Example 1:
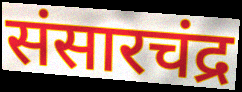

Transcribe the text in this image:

संसारचंद्र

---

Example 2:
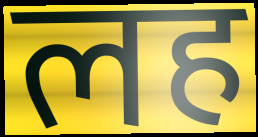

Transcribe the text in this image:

लह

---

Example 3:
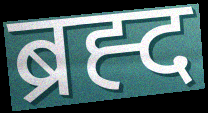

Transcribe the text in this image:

ब्रह्द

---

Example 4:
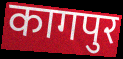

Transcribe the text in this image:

कागपुर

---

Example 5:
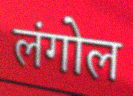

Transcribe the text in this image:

लंगोल